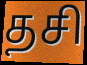
தசி